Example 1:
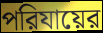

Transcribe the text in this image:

পরিযায়ের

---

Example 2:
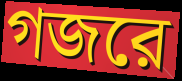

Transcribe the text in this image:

গজরে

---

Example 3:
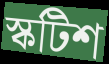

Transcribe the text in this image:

স্কটিশ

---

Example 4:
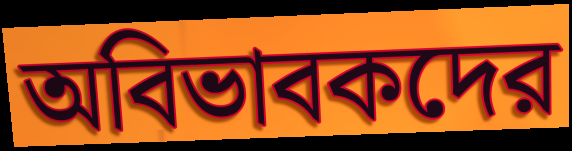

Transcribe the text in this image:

অবিভাবকদের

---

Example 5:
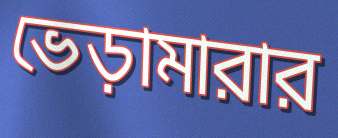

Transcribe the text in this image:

ভেড়ামারার